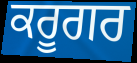
ਕਰੂਗਰ